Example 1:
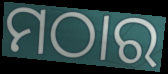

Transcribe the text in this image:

ମଠାର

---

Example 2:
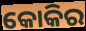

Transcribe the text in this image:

କୋକିର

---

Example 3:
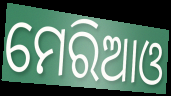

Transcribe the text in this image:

ମେରିଆଓ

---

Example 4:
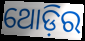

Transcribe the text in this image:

ଥୋଡ଼ିର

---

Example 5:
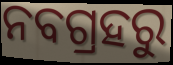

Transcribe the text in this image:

ନବଗ୍ରହରୁ